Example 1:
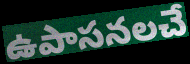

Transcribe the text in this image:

ఉపాసనలచే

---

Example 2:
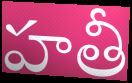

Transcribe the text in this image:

హతీ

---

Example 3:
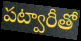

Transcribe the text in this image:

పట్వారీతో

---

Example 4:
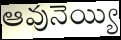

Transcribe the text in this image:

ఆవునెయ్యి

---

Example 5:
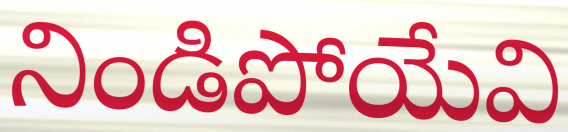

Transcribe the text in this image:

నిండిపోయేవి